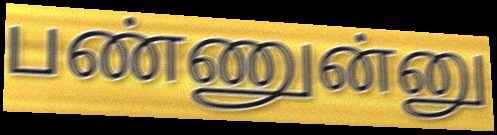
பண்ணுன்னு